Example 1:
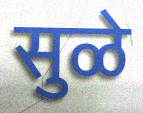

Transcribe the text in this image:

सुळे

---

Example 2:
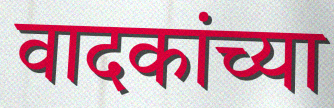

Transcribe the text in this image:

वादकांच्या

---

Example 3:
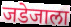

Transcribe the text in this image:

जडेजाला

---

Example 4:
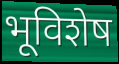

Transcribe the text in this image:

भूविशेष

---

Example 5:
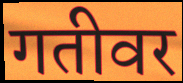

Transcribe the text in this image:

गतीवर